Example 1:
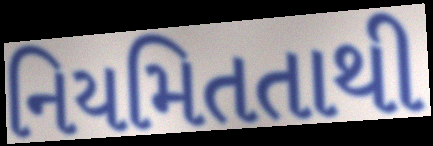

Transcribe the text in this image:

નિયમિતતાથી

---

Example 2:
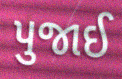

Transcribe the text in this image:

પુજાઈ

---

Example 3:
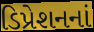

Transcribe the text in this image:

ડિપ્રેશનનાં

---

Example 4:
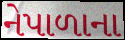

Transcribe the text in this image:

નેપાળાના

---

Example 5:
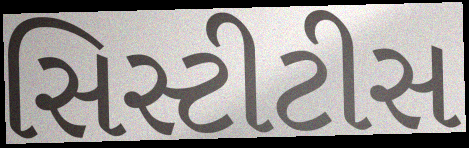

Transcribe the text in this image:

સિસ્ટીટીસ